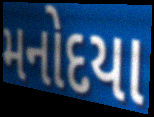
મનોદયા